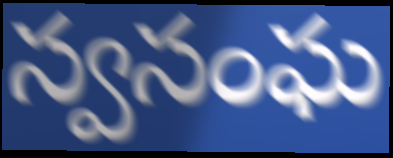
స్వసంఘ